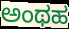
ಅಂಥಹ